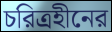
চরিত্রহীনের